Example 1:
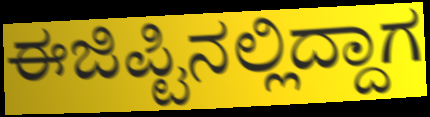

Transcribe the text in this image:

ಈಜಿಪ್ಟಿನಲ್ಲಿದ್ದಾಗ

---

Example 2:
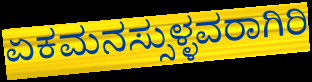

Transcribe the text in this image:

ಏಕಮನಸ್ಸುಳ್ಳವರಾಗಿರಿ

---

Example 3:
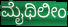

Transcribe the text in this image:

ಮೈಥಿಲೀಂ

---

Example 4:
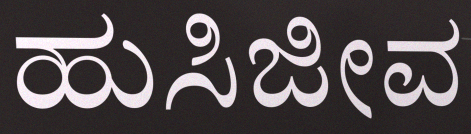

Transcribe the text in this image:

ಹುಸಿಜೀವ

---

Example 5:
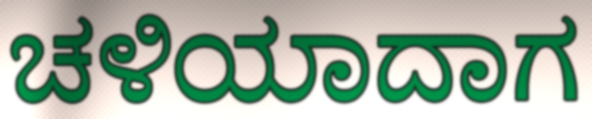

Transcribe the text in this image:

ಚಳಿಯಾದಾಗ